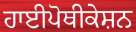
ਹਾਈਪੋਥੀਕੇਸ਼ਨ